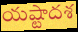
యష్టాదశ